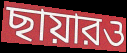
ছায়ারও